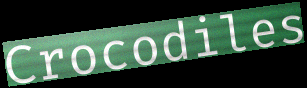
Crocodiles